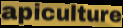
apiculture